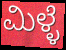
ಮಿಳ್ಳೆ